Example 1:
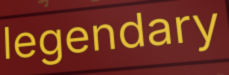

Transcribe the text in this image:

legendary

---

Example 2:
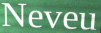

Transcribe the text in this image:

Neveu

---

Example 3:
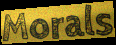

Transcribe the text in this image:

Morals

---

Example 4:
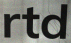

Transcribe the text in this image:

rtd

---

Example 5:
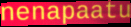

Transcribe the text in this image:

nenapaatu